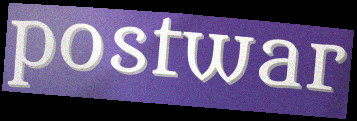
postwar